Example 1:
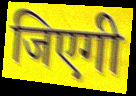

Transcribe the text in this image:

जिएगी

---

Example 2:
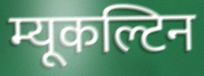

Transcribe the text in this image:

म्यूकल्टिन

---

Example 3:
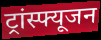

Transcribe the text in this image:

ट्रांस्फ्यूजन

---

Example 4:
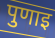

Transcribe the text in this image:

पुणाइ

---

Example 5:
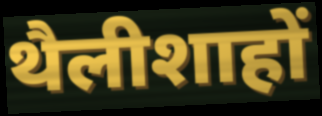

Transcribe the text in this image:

थैलीशाहों